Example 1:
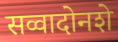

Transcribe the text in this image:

सव्वादोनशे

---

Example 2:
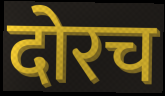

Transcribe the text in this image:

दोरच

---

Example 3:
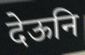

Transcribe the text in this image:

देऊनि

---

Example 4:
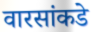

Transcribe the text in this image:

वारसांकडे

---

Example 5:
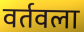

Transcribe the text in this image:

वर्तवला